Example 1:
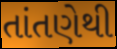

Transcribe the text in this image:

તાંતણેથી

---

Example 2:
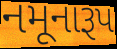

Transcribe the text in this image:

નમૂનારૂપ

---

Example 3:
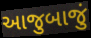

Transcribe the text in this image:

આજુબાજું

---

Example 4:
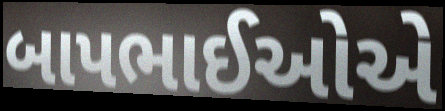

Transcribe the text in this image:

બાપભાઈઓએ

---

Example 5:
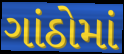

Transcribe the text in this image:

ગાંઠોમાં